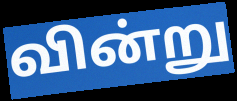
வின்று